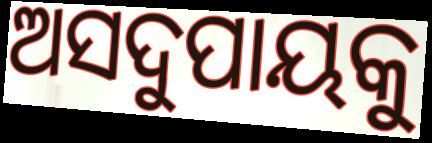
ଅସଦୁପାୟକୁ